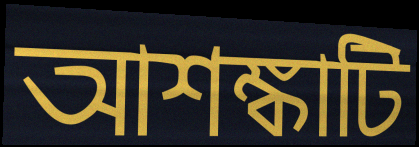
আশঙ্কাটি